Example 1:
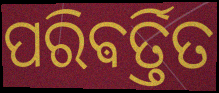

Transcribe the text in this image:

ପରିଵର୍ତ୍ତିତ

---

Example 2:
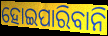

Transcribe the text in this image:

ହୋଇପାରିବାନି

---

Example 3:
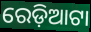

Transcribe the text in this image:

ରେଡ଼ିଆଟା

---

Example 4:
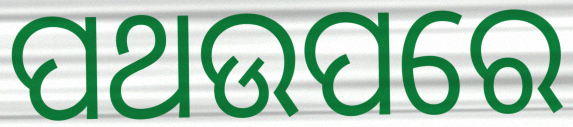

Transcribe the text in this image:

ପଥଉପରେ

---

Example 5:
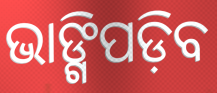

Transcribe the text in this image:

ଭାଙ୍ଗିପଡ଼ିବ